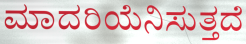
ಮಾದರಿಯೆನಿಸುತ್ತದೆ